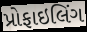
પ્રોફાઇલિંગ